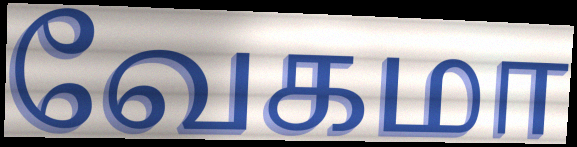
வேகமா